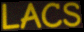
LACS